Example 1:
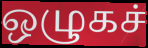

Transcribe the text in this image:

ஒழுகச்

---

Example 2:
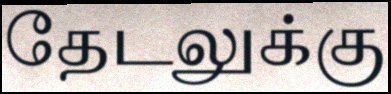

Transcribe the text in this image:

தேடலுக்கு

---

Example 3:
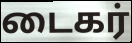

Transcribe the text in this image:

டைகர்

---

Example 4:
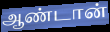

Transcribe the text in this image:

ஆண்டான்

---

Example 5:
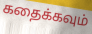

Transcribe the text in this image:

கதைக்கவும்